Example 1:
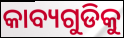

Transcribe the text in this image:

କାବ୍ୟଗୁଡିକୁ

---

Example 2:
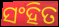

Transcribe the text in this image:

ସଂହିତ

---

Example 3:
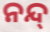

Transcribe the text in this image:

ନନ୍ଦ୍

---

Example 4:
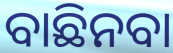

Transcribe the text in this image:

ବାଛିନବା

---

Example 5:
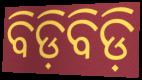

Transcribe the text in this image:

ବିଡ଼ିବିଡ଼ି